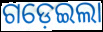
ଗଡ଼େଇଲା